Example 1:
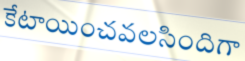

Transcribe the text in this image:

కేటాయించవలసిందిగా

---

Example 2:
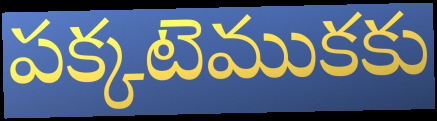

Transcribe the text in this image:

పక్కటెముకకు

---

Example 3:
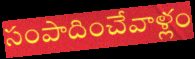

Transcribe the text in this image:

సంపాదించేవాళ్లం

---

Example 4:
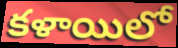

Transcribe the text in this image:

కళాయిలో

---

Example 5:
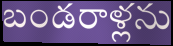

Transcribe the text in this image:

బండరాళ్లను